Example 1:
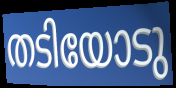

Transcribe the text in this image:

തടിയോടു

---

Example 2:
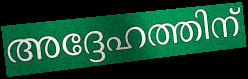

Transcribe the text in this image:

അദ്ദേഹത്തിന്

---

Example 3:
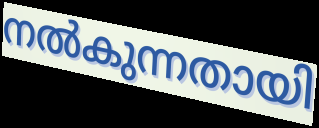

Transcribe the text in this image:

നൽകുന്നതായി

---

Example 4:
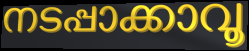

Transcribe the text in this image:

നടപ്പാക്കാവൂ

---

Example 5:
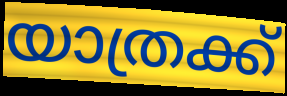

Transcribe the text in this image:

യാത്രക്ക്